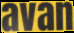
avan